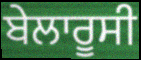
ਬੇਲਾਰੂਸੀ